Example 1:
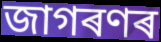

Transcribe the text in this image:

জাগৰণৰ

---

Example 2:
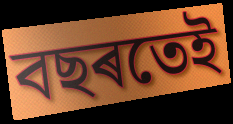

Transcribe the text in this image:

বছৰতেই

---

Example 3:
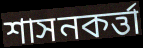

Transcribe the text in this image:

শাসনকৰ্ত্তা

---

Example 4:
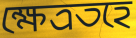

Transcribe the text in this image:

ক্ষেত্ৰতহে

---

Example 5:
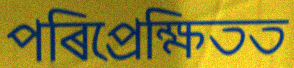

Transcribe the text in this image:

পৰিপ্ৰেক্ষিতত